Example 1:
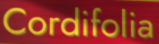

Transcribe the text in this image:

Cordifolia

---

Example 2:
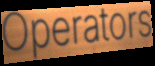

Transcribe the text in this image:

Operators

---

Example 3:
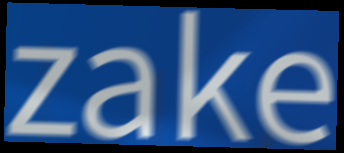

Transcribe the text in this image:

zake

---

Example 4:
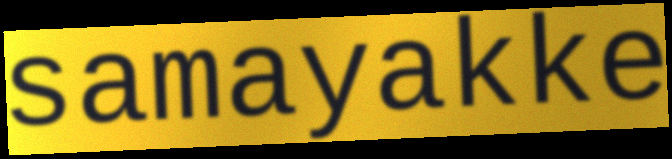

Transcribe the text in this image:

samayakke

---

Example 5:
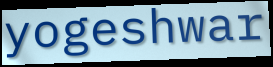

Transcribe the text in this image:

yogeshwar